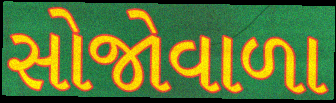
સોજોવાળા